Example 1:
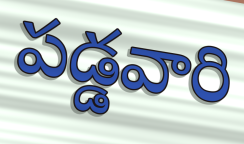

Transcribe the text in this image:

పడ్డవారి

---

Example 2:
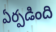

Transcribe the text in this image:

ఏర్పడింది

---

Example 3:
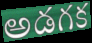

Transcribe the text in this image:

అడగక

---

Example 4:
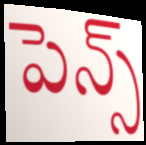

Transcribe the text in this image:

పెన్స్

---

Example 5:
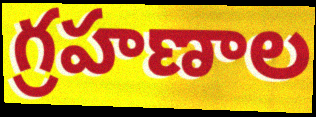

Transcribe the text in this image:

గ్రహణాల